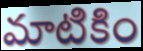
మాటికిం